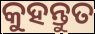
କୁହନ୍ତୁତ